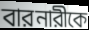
বারনারীকে